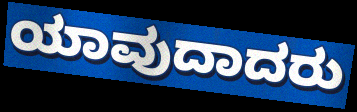
ಯಾವುದಾದರು